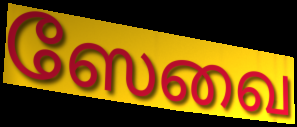
ஸேவை